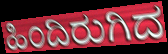
ಹಿಂದಿರುಗಿದ